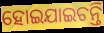
ହୋଇଯାଇଚନ୍ତି